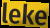
leke